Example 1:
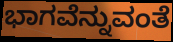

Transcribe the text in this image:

ಭಾಗವೆನ್ನುವಂತೆ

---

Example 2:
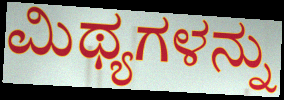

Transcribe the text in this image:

ಮಿಥ್ಯಗಳನ್ನು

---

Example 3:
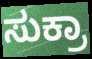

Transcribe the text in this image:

ಸುಕ್ರಾ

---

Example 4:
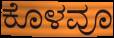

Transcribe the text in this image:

ಕೊಳವೂ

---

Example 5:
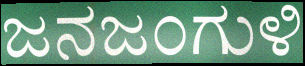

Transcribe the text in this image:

ಜನಜಂಗುಳಿ